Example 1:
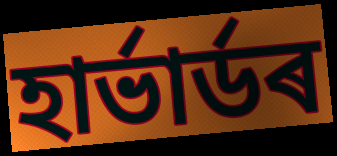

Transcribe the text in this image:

হাৰ্ভাৰ্ডৰ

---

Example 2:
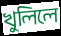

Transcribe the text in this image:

খুলিলে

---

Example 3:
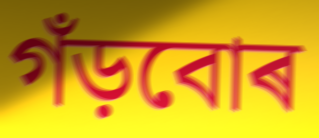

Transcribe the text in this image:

গঁড়বোৰ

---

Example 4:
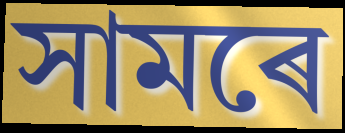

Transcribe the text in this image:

সামৰে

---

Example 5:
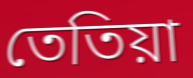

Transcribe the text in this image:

তেতিয়া